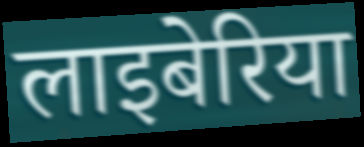
लाइबेरिया